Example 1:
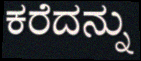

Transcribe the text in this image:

ಕರೆದನ್ನು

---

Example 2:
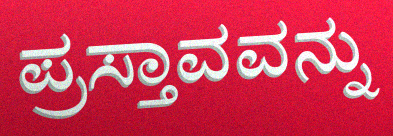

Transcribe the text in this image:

ಪ್ರಸ್ತಾವವನ್ನು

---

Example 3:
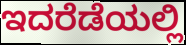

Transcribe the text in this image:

ಇದರೆಡೆಯಲ್ಲಿ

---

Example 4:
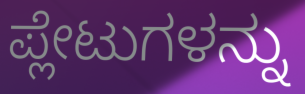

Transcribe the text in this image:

ಪ್ಲೇಟುಗಳನ್ನು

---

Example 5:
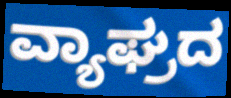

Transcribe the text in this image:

ವ್ಯಾಘ್ರದ